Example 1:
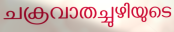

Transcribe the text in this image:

ചക്രവാതച്ചുഴിയുടെ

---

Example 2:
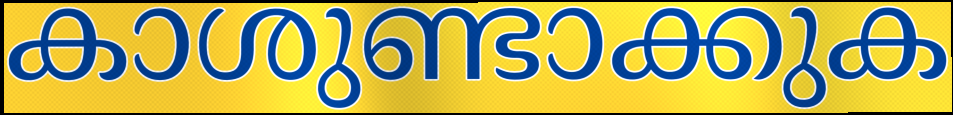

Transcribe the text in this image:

കാശുണ്ടാക്കുക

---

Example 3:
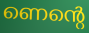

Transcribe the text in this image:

ണെന്റെ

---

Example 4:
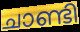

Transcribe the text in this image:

ചാണ്ടി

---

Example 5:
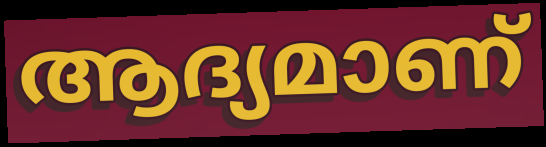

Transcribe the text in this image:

ആദ്യമാണ്